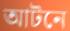
আটনে